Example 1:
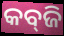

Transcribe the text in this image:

କବ୍‍ଜି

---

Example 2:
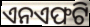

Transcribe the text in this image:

ଏନଏଫଟି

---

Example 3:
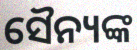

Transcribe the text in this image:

ସୈନ୍ୟଙ୍କ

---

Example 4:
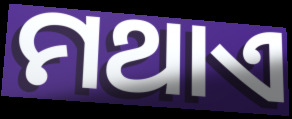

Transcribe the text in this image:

ମଥାଏ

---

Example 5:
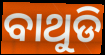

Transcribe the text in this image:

ବାଥୁଡି